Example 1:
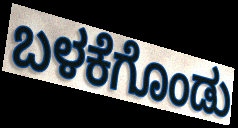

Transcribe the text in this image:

ಬಳಕೆಗೊಂಡು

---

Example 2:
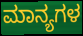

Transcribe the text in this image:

ಮಾನ್ಯಗಳ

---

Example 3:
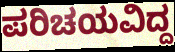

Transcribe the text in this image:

ಪರಿಚಯವಿದ್ದ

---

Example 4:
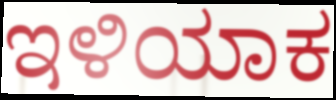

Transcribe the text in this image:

ಇಳಿಯಾಕ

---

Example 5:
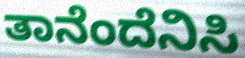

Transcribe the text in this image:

ತಾನೆಂದೆನಿಸಿ